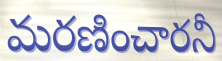
మరణించారనీ